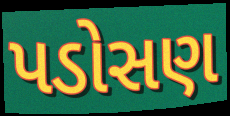
પડોસણ